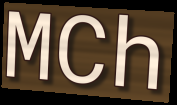
MCh